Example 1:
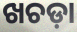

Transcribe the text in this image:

ଖଚଡ଼ା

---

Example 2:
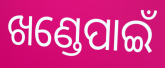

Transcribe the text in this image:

ଖଣ୍ଡେପାଇଁ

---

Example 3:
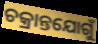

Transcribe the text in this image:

ଚକ୍ରାନ୍ତଯୋଗୁଁ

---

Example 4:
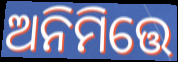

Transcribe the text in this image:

ଅନିମିତ୍ତେ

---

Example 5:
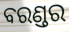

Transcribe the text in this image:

ବରଣ୍ଡର